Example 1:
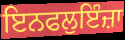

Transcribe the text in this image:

ਇਨਫਲੁਇੰਜ਼ਾ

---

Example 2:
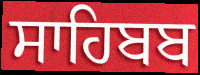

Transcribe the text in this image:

ਸਾਹਿਬਬ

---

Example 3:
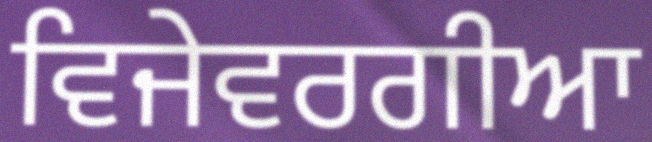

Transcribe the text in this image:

ਵਿਜੇਵਰਗੀਆ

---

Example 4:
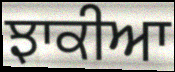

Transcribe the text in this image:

ਝਾਕੀਆ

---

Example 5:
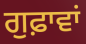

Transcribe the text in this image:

ਗੁਫ਼ਾਵਾਂ